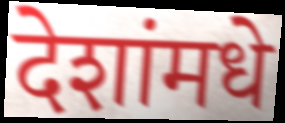
देशांमधे